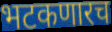
भटकणारच